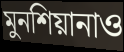
মুনশিয়ানাও